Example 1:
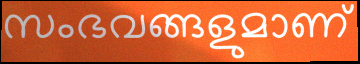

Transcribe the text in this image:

സംഭവങ്ങളുമാണ്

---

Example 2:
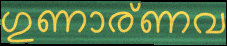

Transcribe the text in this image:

ഗുണാര്ണവ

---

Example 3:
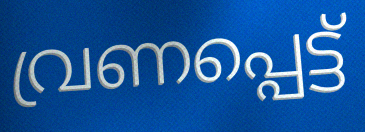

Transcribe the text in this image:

വ്രണപ്പെട്ട്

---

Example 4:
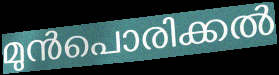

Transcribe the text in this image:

മുൻപൊരിക്കൽ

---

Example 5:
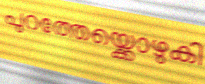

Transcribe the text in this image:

പുറത്തേയ്ക്കൊഴുകി